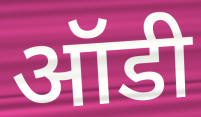
ऑडी